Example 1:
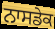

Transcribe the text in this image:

ਨਾਸਡੇਕ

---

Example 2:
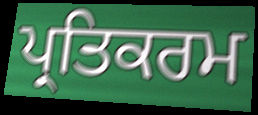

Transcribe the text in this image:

ਪ੍ਰਤਿਕਰਮ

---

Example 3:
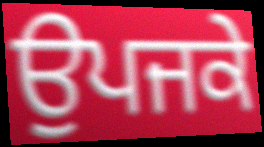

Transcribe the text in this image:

ਉਪਜਕੇ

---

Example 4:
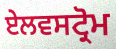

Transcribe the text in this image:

ਏਲਵਸਟ੍ਰੋਮ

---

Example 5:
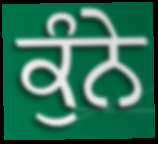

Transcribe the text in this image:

ਕੁੰਨੇ